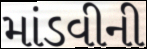
માંડવીની